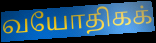
வயோதிகக்